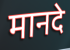
मानदे